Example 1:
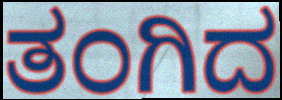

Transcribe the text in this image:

ತಂಗಿದ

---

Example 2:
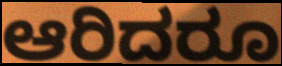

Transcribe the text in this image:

ಆರಿದರೂ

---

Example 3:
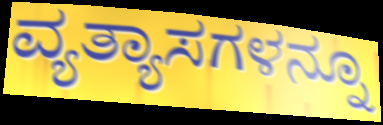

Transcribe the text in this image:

ವ್ಯತ್ಯಾಸಗಳನ್ನೂ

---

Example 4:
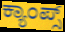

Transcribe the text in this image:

ಕ್ಯಾಂಪ್ಸ್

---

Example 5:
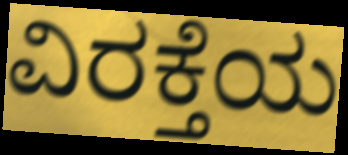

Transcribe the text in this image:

ವಿರಕ್ತೆಯ